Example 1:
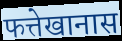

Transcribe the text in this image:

फत्तेखानास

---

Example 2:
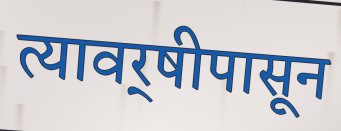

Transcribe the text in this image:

त्यावर्षीपासून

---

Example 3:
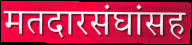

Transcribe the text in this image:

मतदारसंघांसह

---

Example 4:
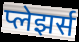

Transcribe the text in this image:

प्लेझर्स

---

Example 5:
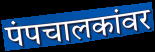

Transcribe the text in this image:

पंपचालकांवर